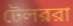
টেলররা